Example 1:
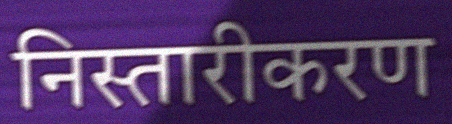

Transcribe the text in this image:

निस्तारीकरण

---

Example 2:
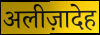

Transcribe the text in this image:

अलीज़ादेह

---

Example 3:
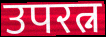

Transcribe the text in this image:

उपरत्न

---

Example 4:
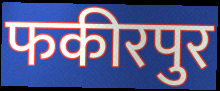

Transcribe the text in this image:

फकीरपुर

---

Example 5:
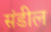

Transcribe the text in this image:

संडील